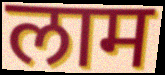
लाम